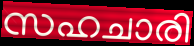
സഹചാരി